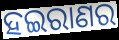
ହଇରାଣର